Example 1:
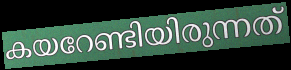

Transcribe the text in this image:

കയറേണ്ടിയിരുന്നത്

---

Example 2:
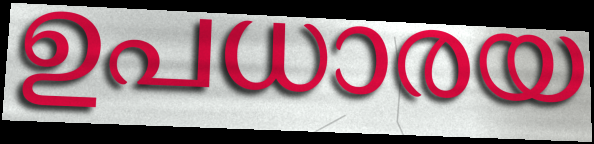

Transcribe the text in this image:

ഉപധാരയ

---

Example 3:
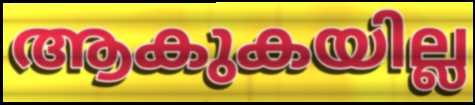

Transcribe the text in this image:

ആകുകയില്ല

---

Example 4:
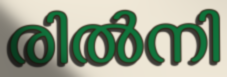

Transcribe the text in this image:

രിൽനി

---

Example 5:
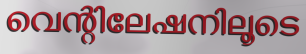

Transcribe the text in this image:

വെന്റിലേഷനിലൂടെ